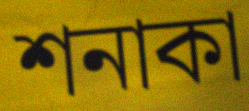
শনাকা